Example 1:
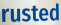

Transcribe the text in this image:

rusted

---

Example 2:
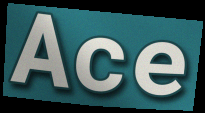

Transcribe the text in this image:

Ace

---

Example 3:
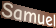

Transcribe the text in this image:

Samuel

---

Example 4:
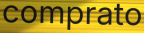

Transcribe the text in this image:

comprato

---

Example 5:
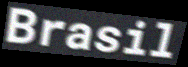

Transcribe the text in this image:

Brasil